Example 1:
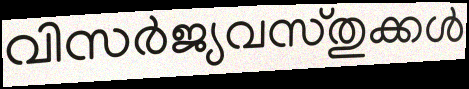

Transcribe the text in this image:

വിസർജ്യവസ്തുക്കൾ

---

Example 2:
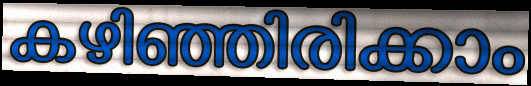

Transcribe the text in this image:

കഴിഞ്ഞിരിക്കാം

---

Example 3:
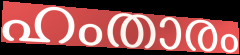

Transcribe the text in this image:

ഹംതാരം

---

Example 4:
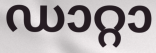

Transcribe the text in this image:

ഡാറ്റാ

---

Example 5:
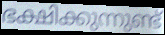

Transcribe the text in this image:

ഭക്ഷിക്കുന്നുണ്ട്